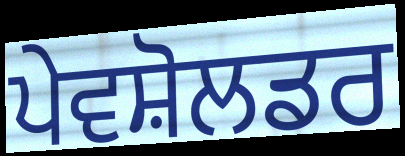
ਪੇਵਸ਼ੋਲਡਰ